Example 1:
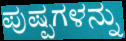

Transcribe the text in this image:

ಪುಷ್ಪಗಳನ್ನು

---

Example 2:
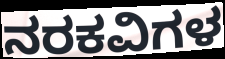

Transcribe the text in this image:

ನರಕವಿಗಳ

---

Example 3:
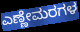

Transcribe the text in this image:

ಎಣ್ಣೇಮರಗಳ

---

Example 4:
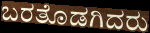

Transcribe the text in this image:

ಬರತೊಡಗಿದರು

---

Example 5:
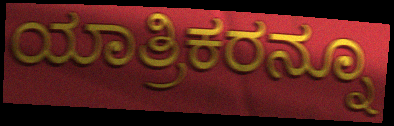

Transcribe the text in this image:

ಯಾತ್ರಿಕರನ್ನೂ